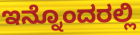
ಇನ್ನೊಂದರಲ್ಲಿ